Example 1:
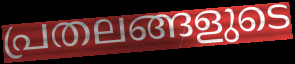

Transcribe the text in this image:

പ്രതലങ്ങളുടെ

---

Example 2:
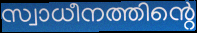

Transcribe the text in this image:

സ്വാധീനത്തിന്റെ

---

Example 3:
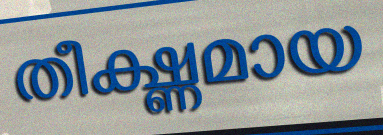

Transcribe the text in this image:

തീക്ഷ്ണമായ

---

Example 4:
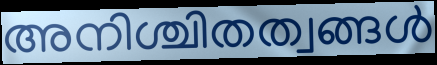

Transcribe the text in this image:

അനിശ്ചിതത്വങ്ങൾ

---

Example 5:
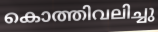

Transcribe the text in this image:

കൊത്തിവലിച്ചു